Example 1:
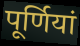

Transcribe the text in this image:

पूर्णियां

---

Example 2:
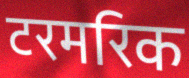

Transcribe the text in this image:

टरमरिक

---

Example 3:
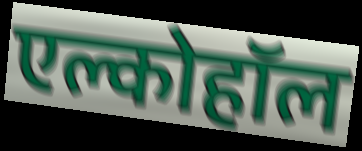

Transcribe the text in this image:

एल्कोहॉल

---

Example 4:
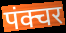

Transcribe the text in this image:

पंक्चर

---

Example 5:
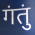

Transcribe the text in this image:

गंतुं